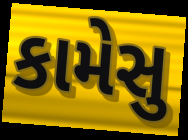
કામેસુ